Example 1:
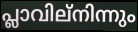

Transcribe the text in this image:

പ്ലാവില്നിന്നും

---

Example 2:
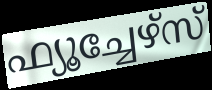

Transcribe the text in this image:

ഫ്യൂച്ചേഴ്സ്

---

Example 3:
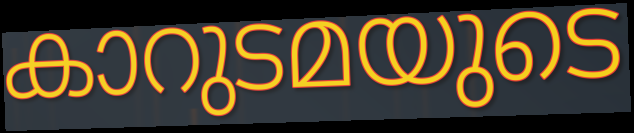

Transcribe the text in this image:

കാറുടമയുടെ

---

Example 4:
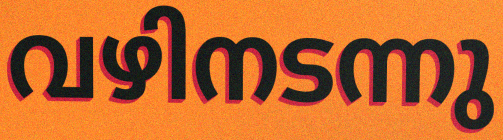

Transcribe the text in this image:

വഴിനടന്നു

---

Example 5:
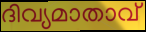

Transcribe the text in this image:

ദിവ്യമാതാവ്